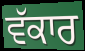
ਵੱਕਾਰ